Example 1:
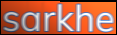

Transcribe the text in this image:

sarkhe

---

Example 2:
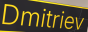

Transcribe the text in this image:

Dmitriev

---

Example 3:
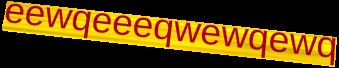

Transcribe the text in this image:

eewqeeeqwewqewq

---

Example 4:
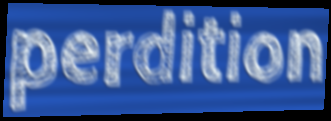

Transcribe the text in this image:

perdition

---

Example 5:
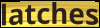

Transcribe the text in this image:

latches